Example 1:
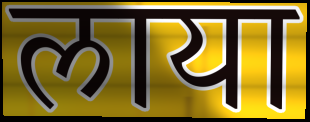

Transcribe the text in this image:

लाया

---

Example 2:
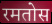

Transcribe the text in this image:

रमतोस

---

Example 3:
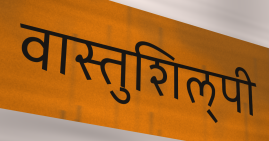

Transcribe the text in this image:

वास्तुशिल्पी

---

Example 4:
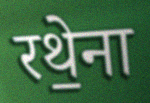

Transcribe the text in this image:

रथे॒ना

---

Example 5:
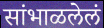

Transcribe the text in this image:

सांभाळलेलं